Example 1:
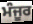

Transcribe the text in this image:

ਮੰਜੂਰ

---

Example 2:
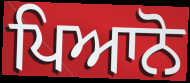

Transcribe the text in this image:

ਪਿਆਨੋ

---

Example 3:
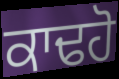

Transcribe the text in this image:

ਕਾਢਹੋ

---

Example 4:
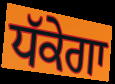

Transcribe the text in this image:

ਧੱਕੇਗਾ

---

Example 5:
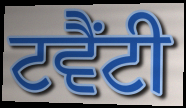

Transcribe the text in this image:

ਟਵੈਂਟੀ